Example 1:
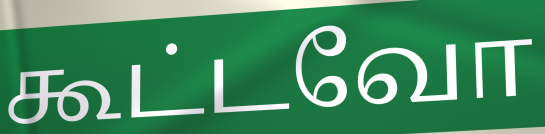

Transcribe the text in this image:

கூட்டவோ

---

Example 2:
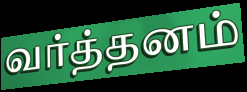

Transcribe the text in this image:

வர்த்தனம்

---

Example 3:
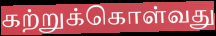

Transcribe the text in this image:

கற்றுக்கொள்வது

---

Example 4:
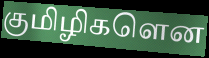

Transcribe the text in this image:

குமிழிகளென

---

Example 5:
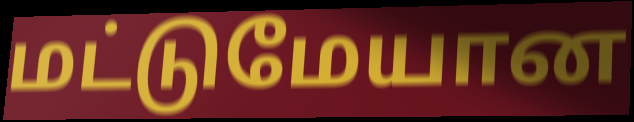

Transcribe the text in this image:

மட்டுமேயான